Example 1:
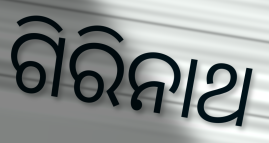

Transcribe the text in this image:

ଗିରିନାଥ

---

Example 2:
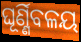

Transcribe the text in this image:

ଘୂର୍ଣ୍ଣିବଳୟ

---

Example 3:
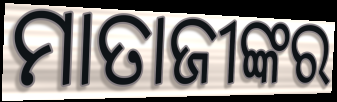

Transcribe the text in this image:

ମାତାଜୀଙ୍କର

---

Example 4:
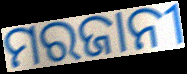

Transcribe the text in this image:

ମରଜାନୀ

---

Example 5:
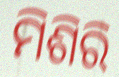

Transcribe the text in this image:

ମିଶିରି